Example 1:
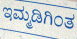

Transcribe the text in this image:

ಇಮ್ಮಡಿಗಿಂತ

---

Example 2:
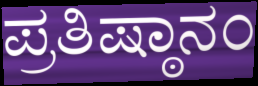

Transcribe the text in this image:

ಪ್ರತಿಷ್ಠಾನಂ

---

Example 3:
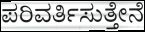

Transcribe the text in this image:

ಪರಿವರ್ತಿಸುತ್ತೇನೆ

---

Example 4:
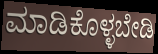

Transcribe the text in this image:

ಮಾಡಿಕೊಳ್ಳಬೇಡಿ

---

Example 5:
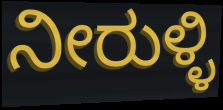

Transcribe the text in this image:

ನೀರುಳ್ಳಿ